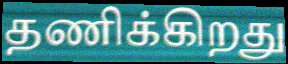
தணிக்கிறது